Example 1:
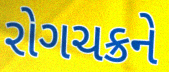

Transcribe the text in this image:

રોગચક્રને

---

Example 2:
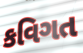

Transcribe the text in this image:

કવિગત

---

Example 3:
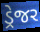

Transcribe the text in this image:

ડ્રેજર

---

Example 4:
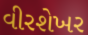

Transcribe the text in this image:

વીરશેખર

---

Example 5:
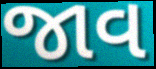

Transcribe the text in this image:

જાવ